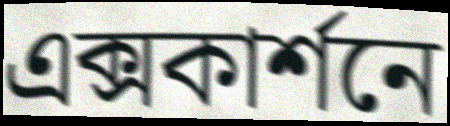
এক্সকার্শনে